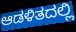
ಆಡಳಿತದಲ್ಲಿ